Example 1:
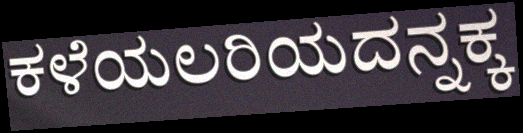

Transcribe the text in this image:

ಕಳೆಯಲರಿಯದನ್ನಕ್ಕ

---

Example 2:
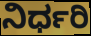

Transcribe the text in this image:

ನಿರ್ಧರಿ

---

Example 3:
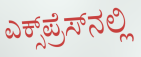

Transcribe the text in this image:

ಎಕ್ಸ್‌ಪ್ರೆಸ್‌ನಲ್ಲಿ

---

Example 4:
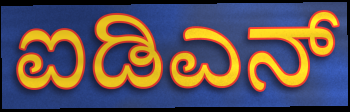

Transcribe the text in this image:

ಐಡಿಎನ್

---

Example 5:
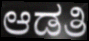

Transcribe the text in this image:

ಆಡತಿ